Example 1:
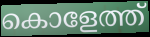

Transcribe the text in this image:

കൊളേത്ത്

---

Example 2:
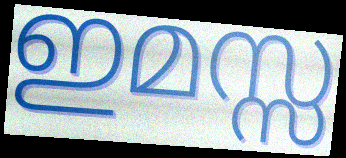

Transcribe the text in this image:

ഇമസ്സ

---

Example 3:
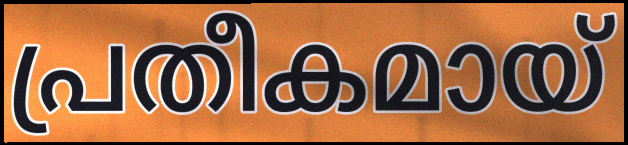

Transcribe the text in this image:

പ്രതീകമായ്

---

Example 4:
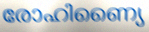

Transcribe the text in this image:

രോഹിണ്യൈ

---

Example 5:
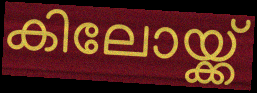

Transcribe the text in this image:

കിലോയ്ക്ക്